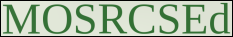
MOSRCSEd